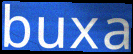
buxa